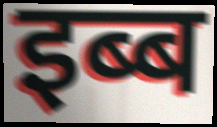
इब्ब